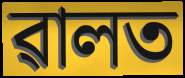
ৱালত